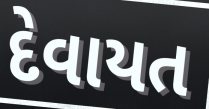
દેવાયત